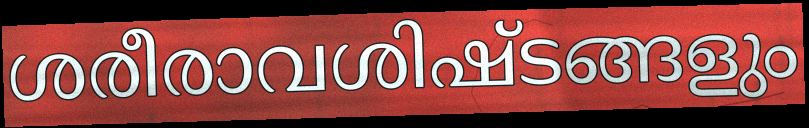
ശരീരാവശിഷ്ടങ്ങളും